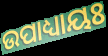
ଉପାଧ୍ୟାୟଃ